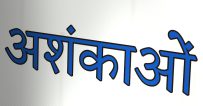
अशंकाओं